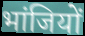
भांजियों